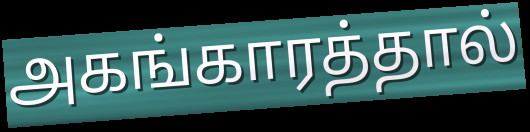
அகங்காரத்தால்